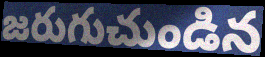
జరుగుచుండిన